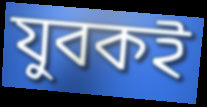
যুবকই